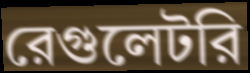
রেগুলেটরি